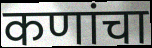
कणांचा